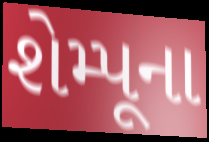
શેમ્પૂના